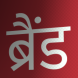
ब्रैंड